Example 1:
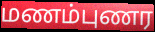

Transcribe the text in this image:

மணம்புணர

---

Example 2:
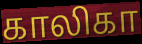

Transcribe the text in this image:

காலிகா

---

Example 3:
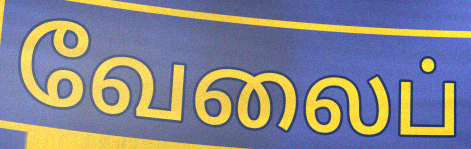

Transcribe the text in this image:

வேலைப்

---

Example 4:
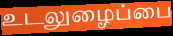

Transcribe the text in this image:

உடலுழைப்பை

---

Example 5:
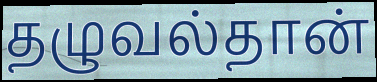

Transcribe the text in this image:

தழுவல்தான்